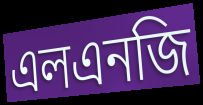
এলএনজি